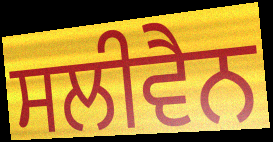
ਸਲੀਵੈਨ